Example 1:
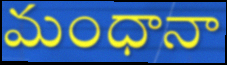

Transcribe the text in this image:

మంధానా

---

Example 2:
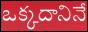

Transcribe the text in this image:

ఒక్కదానినే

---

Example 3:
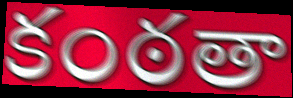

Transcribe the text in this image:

కంఠతా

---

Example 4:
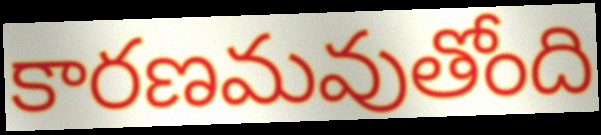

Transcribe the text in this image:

కారణమవుతోంది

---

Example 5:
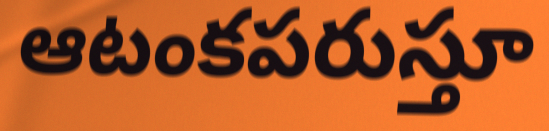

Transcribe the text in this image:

ఆటంకపరుస్తూ